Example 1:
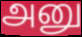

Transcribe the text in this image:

அனு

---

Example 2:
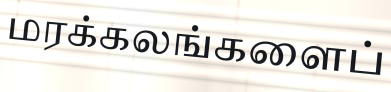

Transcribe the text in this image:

மரக்கலங்களைப்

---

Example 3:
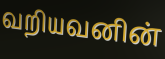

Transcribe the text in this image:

வறியவனின்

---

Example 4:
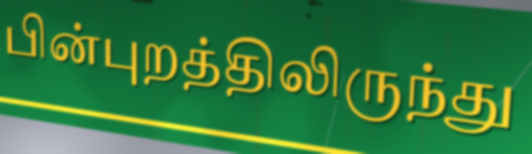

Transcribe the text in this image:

பின்புறத்திலிருந்து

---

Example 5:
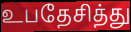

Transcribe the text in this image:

உபதேசித்து